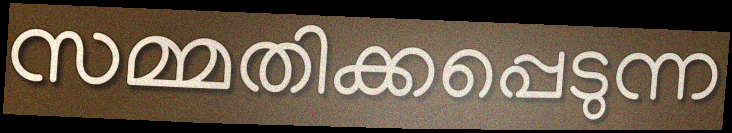
സമ്മതിക്കപ്പെടുന്ന